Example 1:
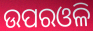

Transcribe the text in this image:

ଉପରଓଳି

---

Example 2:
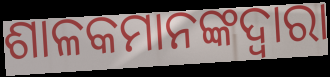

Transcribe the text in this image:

ଶାଳକମାନଙ୍କଦ୍ୱାରା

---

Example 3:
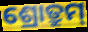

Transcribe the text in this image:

ଶ୍ରୋତ୍ରୁମ୍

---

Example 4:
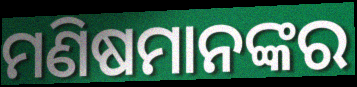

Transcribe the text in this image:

ମଣିଷମାନଙ୍କର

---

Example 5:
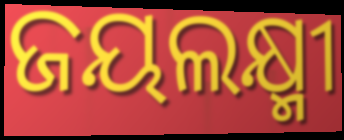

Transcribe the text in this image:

ଜୟଲକ୍ଷ୍ମୀ